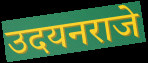
उदयनराजे